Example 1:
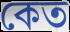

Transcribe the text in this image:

কেত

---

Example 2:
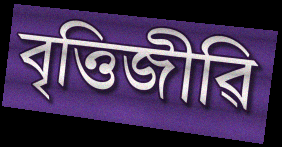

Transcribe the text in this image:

বৃত্তিজীৱি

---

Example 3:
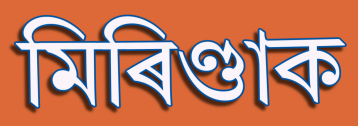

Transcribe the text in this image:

মিৰিণ্ডাক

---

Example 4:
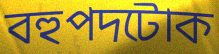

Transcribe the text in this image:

বহুপদটোক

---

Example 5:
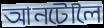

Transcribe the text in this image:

আনটোলৈ